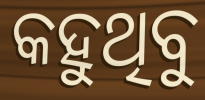
କହୁଥିବୁ